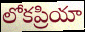
లోకప్రియా